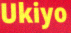
Ukiyo